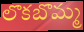
లొకబొమ్మ